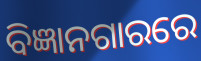
ବିଜ୍ଞାନଗାରରେ